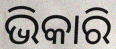
ଭିକାରି